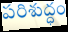
పరిశుద్ధం